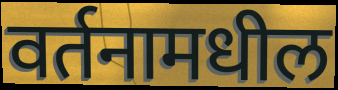
वर्तनामधील